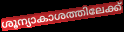
ശൂന്യാകാശത്തിലേക്ക്